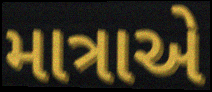
માત્રાએ